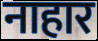
नाहार